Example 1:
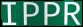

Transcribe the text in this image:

IPPR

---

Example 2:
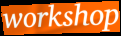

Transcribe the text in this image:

workshop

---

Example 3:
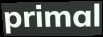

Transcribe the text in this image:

primal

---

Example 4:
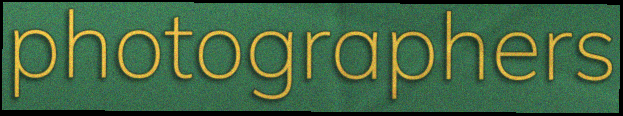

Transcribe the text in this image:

photographers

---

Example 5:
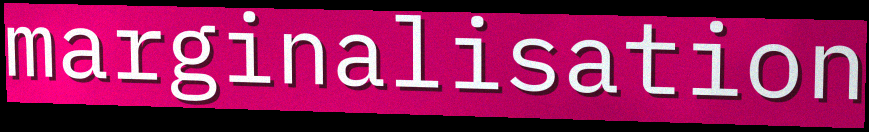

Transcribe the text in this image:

marginalisation